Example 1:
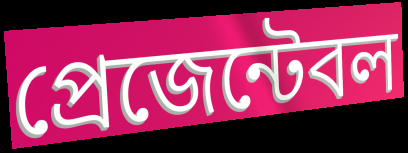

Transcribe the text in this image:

প্রেজেন্টেবল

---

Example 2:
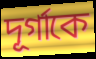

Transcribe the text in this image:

দূর্গাকে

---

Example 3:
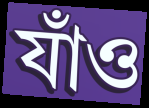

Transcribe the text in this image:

যাঁও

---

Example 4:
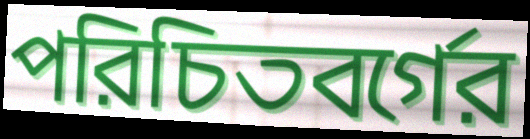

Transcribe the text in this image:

পরিচিতবর্গের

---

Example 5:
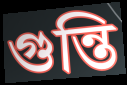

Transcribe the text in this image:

গুন্তি